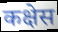
कक्षेस